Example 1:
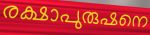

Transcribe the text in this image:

രക്ഷാപുരുഷനെ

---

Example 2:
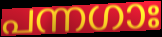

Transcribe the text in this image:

പന്നഗാഃ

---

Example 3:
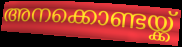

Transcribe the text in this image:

അനക്കൊണ്ടയ്ക്ക്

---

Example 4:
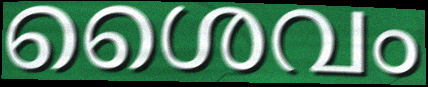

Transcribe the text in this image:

ശൈവം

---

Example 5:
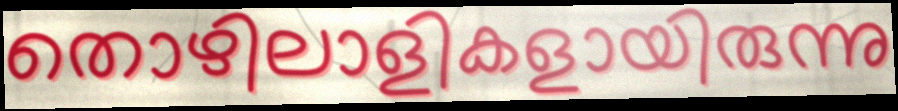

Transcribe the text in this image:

തൊഴിലാളികളായിരുന്നു